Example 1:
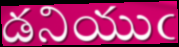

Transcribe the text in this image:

డనియుఁ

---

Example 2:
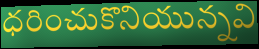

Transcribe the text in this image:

ధరించుకొనియున్నవి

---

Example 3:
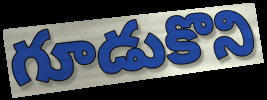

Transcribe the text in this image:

గూడుకొని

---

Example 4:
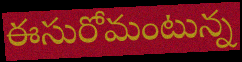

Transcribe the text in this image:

ఈసురోమంటున్న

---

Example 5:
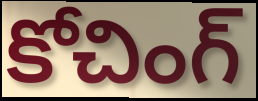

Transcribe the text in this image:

కోచింగ్